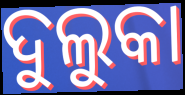
ଦୁଲୁକା